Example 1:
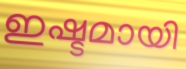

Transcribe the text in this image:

ഇഷ്ടമായി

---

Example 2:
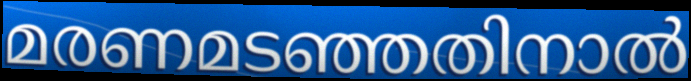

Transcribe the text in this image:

മരണമടഞ്ഞതിനാൽ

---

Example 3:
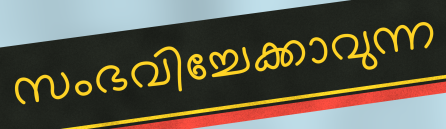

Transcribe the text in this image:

സംഭവിച്ചേക്കാവുന്ന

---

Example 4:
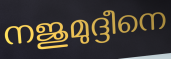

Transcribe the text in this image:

നജുമുദ്ദീനെ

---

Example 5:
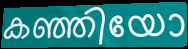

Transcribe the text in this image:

കഞ്ഞിയോ